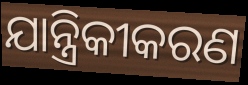
ଯାନ୍ତ୍ରିକୀକରଣ